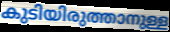
കുടിയിരുത്താനുള്ള